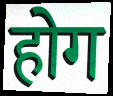
होग